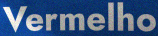
Vermelho